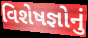
વિશેષજ્ઞોનું